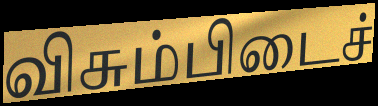
விசும்பிடைச்